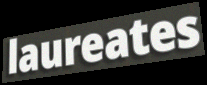
laureates